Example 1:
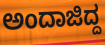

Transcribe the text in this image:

ಅಂದಾಜಿದ್ದ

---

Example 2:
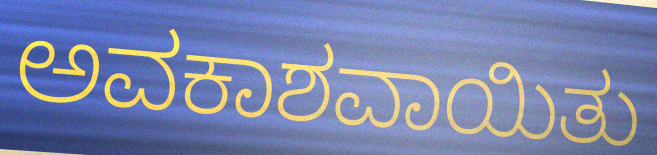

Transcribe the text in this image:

ಅವಕಾಶವಾಯಿತು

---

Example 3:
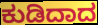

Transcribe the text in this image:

ಕುಡಿದಾದ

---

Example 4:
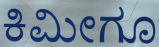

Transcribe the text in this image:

ಕಿಮೀಗೂ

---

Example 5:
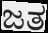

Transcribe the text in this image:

ಜತ